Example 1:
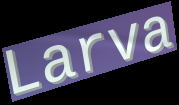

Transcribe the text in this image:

Larva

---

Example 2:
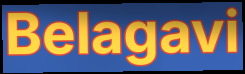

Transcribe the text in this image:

Belagavi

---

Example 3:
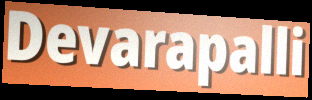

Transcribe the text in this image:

Devarapalli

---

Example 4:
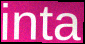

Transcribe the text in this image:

inta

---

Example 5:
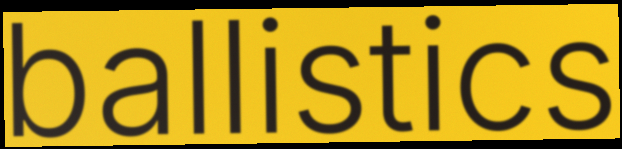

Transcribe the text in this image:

ballistics